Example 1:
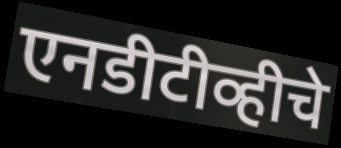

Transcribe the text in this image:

एनडीटीव्हीचे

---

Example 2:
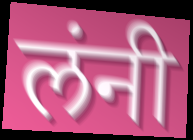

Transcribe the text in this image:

लंनी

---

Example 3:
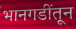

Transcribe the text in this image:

भानगडींतून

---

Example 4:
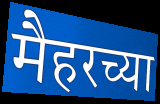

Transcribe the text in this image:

मैहरच्या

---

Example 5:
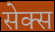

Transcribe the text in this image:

सेक्स